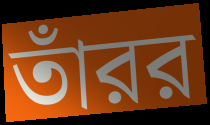
তাঁরর